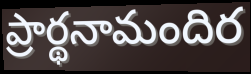
ప్రార్థనామందిర